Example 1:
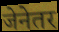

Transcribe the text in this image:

जेनेतर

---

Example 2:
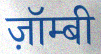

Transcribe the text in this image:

ज़ॉम्बी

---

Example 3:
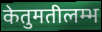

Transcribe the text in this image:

केतुमतीलम्भ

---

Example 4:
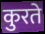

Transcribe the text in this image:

कुरते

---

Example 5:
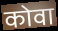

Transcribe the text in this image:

कोवा